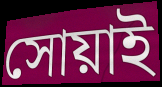
সোয়াই